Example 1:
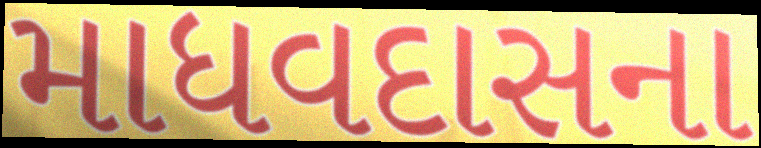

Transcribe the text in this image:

માધવદાસના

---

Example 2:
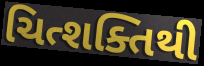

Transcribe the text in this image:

ચિત્શક્તિથી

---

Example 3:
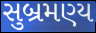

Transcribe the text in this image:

સુબ્રમણ્ય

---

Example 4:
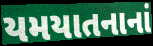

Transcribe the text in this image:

યમયાતનાનાં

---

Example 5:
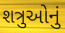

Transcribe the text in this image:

શત્રુઓનું